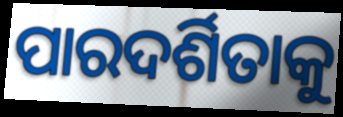
ପାରଦର୍ଶିତାକୁ